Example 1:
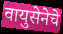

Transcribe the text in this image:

वायुसेनेचे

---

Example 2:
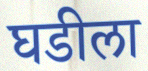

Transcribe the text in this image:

घडीला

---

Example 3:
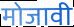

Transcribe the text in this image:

मोजावी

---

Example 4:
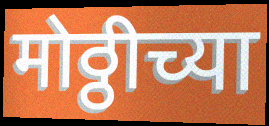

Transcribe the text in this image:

मोठ्ठीच्या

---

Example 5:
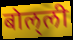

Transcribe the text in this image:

बोल्ली